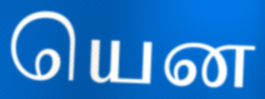
யென